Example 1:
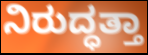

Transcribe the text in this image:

ನಿರುದ್ಧತ್ತಾ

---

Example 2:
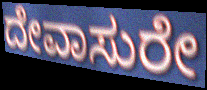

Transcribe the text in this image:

ದೇವಾಸುರೇ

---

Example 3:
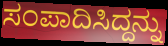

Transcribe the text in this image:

ಸಂಪಾದಿಸಿದ್ದನ್ನು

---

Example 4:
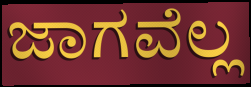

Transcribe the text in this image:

ಜಾಗವೆಲ್ಲ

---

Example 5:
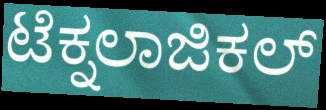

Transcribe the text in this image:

ಟೆಕ್ನಲಾಜಿಕಲ್